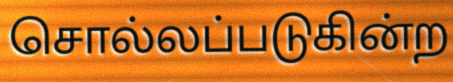
சொல்லப்படுகின்ற